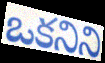
ఒకనిని